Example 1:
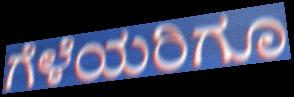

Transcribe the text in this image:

ಗೆಳೆಯರಿಗೂ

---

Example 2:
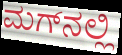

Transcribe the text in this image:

ಮಗ್‌ನಲ್ಲಿ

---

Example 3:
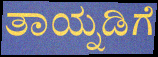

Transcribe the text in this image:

ತಾಯ್ನಡಿಗೆ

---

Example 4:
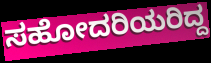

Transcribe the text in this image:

ಸಹೋದರಿಯರಿದ್ದ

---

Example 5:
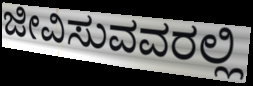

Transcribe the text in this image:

ಜೀವಿಸುವವರಲ್ಲಿ